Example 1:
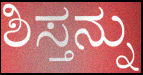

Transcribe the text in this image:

ಶಿಸ್ತನ್ನು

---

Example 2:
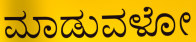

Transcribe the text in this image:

ಮಾಡುವಳೋ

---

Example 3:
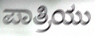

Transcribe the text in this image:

ಪಾತ್ರಿಯು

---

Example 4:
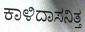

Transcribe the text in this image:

ಕಾಳಿದಾಸನಿತ್ತ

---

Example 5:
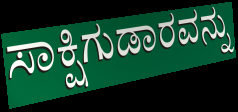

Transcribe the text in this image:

ಸಾಕ್ಷಿಗುಡಾರವನ್ನು